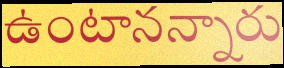
ఉంటానన్నారు